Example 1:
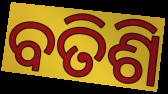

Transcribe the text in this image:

ବତିଶି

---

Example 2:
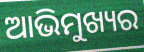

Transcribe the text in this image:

ଆଭିମୁଖ୍ୟର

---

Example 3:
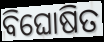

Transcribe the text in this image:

ବିଘୋଷିତ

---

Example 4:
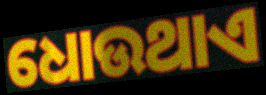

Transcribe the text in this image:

ଧୋଉଥାଏ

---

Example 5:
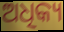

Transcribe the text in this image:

ଅଧିକ୍ୟ